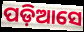
ପଡ଼ିଆସେ